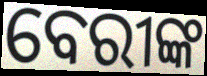
ବେରୀଙ୍କ